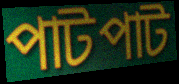
পাটপাট